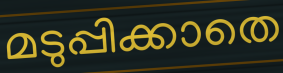
മടുപ്പിക്കാതെ